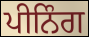
ਪੀਨਿੰਗ